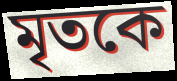
মৃতকে